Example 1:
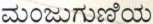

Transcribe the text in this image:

ಮಂಜುಗುಣಿಯ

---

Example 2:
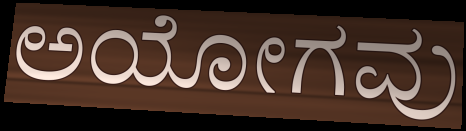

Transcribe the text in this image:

ಅಯೋಗವು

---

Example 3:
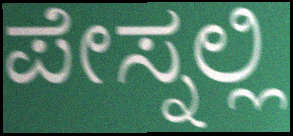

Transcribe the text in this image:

ಪೇಸ್ನಲ್ಲಿ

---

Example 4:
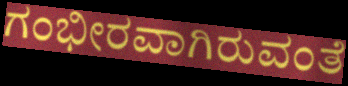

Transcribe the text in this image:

ಗಂಭೀರವಾಗಿರುವಂತೆ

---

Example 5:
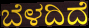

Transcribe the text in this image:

ಬೆಳದಿದೆ